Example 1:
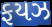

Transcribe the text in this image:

ફયઝ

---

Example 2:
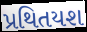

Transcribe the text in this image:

પ્રથિતયશ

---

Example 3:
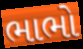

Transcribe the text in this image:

ભાભો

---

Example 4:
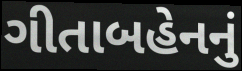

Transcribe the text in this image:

ગીતાબહેનનું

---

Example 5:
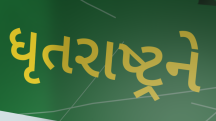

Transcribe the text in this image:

ધૃતરાષ્ટ્રને